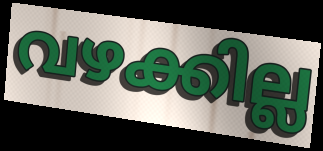
വഴക്കില്ല